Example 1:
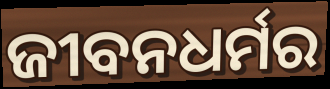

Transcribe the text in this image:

ଜୀବନଧର୍ମର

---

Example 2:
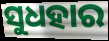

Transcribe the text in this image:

ସୁଧହାର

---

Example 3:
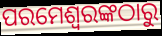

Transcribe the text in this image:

ପରମେଶ୍ଵରଙ୍କଠାରୁ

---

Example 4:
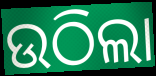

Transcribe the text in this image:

ଉଠିଲା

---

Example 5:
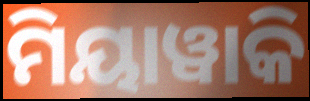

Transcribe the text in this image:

ମିୟାୱାକି